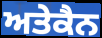
ਅਤੇਕੈਨ